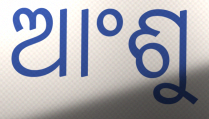
ଆଂଶୁ